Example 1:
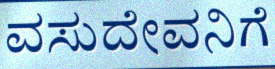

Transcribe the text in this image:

ವಸುದೇವನಿಗೆ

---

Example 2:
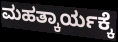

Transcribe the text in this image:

ಮಹತ್ಕಾರ್ಯಕ್ಕೆ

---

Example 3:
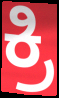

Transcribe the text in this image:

ಕ್ರಿ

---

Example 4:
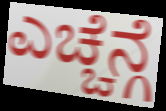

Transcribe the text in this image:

ಎಚ್ಚೆನ್ಗೆ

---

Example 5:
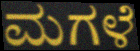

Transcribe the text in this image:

ಮಗಳೆ